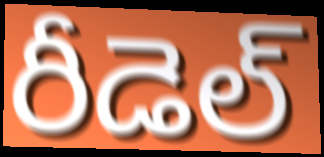
రీడెల్